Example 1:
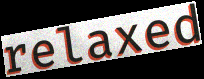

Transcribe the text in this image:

relaxed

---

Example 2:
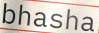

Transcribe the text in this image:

bhasha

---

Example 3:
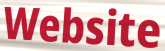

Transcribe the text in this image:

Website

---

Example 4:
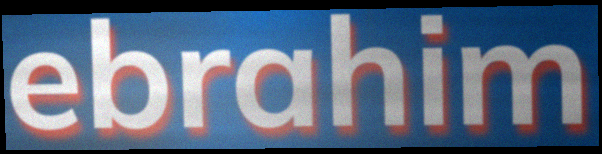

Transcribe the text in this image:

ebrahim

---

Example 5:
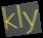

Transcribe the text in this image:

kly